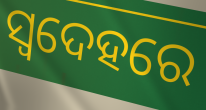
ସ୍ଵଦେହରେ